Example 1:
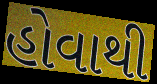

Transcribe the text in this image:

હોવાથી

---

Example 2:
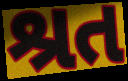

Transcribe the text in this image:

શ્રત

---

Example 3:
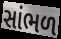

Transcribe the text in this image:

સાંભળ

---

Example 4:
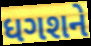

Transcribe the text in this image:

ધગશને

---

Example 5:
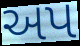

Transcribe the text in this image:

અપ